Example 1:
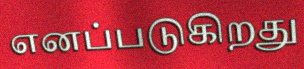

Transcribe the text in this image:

எனப்படுகிறது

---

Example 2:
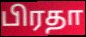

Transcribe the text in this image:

பிரதா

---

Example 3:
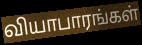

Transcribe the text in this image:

வியாபாரங்கள்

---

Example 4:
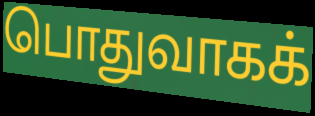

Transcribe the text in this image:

பொதுவாகக்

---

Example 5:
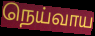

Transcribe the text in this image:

நெய்வாய